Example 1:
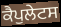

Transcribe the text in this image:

ਕੈਪੁਲੇਟਸ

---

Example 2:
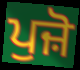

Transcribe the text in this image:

ਪੁਜ਼ੋ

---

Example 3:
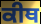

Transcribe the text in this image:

ਕੀਥ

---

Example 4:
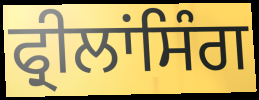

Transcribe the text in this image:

ਫ੍ਰੀਲਾਂਸਿੰਗ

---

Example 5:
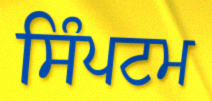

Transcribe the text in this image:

ਸਿੰਪਟਮ